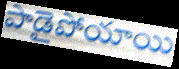
పాడైపోయాయి